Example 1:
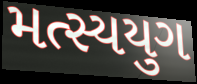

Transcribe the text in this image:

મત્સ્યયુગ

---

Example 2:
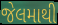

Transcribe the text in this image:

જેલમાથી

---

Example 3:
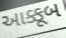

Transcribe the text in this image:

આક્કૂબ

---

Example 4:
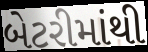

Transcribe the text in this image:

બેટરીમાંથી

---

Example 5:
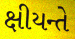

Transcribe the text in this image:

ક્ષીયન્તે